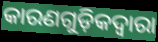
କାରଣଗୁଡ଼ିକଦ୍ବାରା